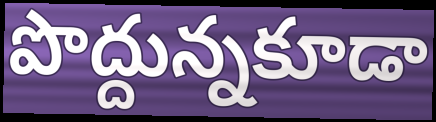
పొద్దున్నకూడా